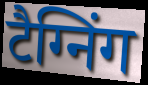
टैग्निंग